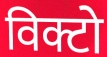
विक्टो